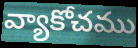
వ్యాకోచము